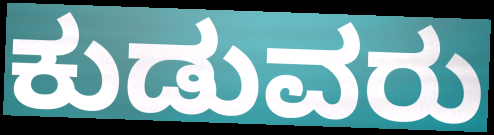
ಕುಡುವರು